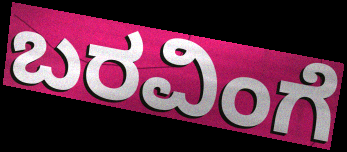
ಬರವಿಂಗೆ